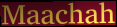
Maachah